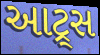
આટ્ર્સ